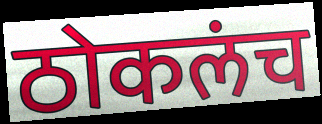
ठोकलंच